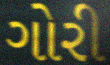
ગોરી